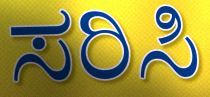
ಸರಿಸಿ